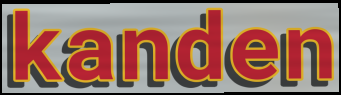
kanden